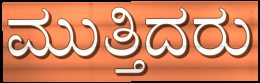
ಮುತ್ತಿದರು